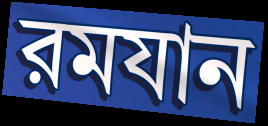
রমযান